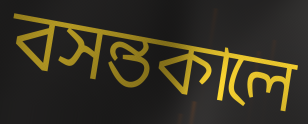
বসন্তকালে